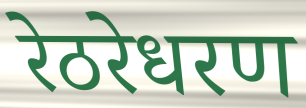
रेठरेधरण